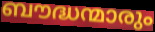
ബൗദ്ധന്മാരും